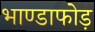
भाण्डाफोड़